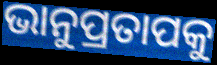
ଭାନୁପ୍ରତାପକୁ